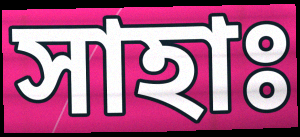
সাহাঃ